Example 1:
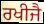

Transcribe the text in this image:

ਰਖੀਜੈ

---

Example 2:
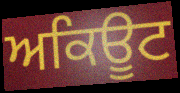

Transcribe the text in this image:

ਅਕਿਊਟ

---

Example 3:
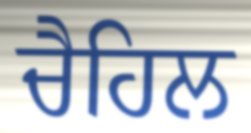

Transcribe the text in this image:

ਚੈਹਿਲ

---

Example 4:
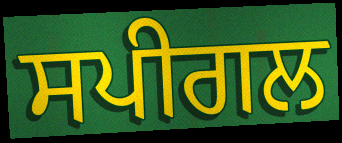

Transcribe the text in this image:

ਸਪੀਗਲ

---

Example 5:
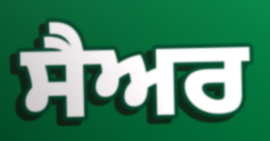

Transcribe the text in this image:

ਸੈਅਰ